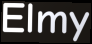
Elmy